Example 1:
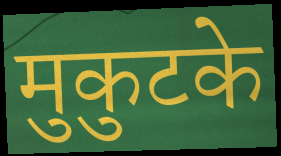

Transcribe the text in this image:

मुकुटके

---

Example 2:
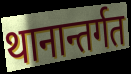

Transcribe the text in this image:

थानान्तर्गत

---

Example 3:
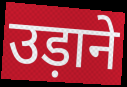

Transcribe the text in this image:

उड़ाने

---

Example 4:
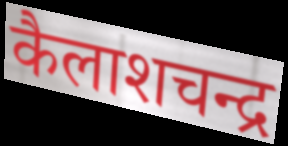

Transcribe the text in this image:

कैलाशचन्द्र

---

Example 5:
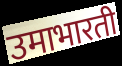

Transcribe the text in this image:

उमाभारती